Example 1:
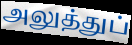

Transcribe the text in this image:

அலுத்துப்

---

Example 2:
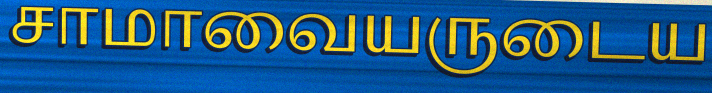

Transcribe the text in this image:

சாமாவையருடைய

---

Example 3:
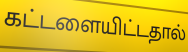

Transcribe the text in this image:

கட்டளையிட்டதால்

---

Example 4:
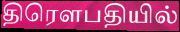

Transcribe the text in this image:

திரௌபதியில்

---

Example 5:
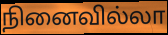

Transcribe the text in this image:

நினைவில்லா